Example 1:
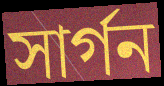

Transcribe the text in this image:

সার্গন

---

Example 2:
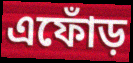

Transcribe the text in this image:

এফোঁড়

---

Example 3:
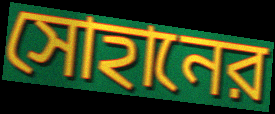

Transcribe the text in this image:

সোহানের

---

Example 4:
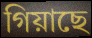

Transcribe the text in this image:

গিয়াছে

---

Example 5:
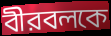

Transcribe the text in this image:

বীরবলকে